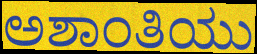
ಅಶಾಂತಿಯು